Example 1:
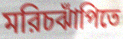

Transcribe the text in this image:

মরিচঝাঁপিতে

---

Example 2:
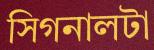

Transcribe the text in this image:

সিগনালটা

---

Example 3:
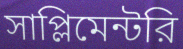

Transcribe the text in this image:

সাপ্লিমেন্টরি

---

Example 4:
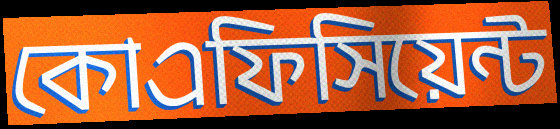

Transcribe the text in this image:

কোএফিসিয়েন্ট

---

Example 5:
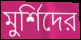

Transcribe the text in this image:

মুর্শিদের